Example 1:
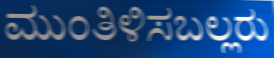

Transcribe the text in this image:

ಮುಂತಿಳಿಸಬಲ್ಲರು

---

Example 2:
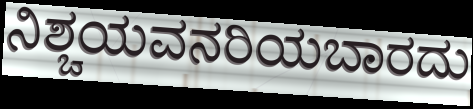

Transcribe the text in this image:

ನಿಶ್ಚಯವನರಿಯಬಾರದು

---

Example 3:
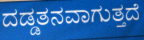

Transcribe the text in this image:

ದಡ್ಡತನವಾಗುತ್ತದೆ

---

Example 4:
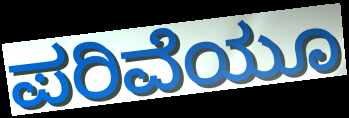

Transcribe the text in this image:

ಪರಿವೆಯೂ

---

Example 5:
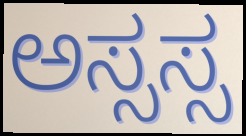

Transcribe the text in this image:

ಅಸ್ಸಸ್ಸ